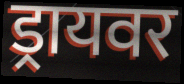
ड्रायवर